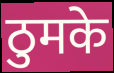
ठुमके